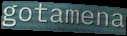
gotamena